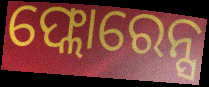
ଫ୍ଲୋରେନ୍ସ